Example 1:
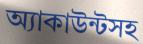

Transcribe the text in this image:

অ্যাকাউন্টসহ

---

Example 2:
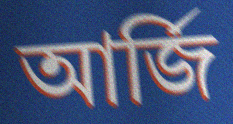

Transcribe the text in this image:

আর্জি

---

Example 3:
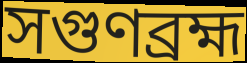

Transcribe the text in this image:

সগুণব্রহ্ম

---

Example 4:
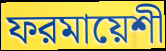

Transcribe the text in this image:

ফরমায়েশী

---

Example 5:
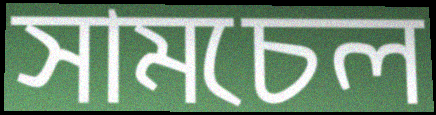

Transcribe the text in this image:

সামচেল